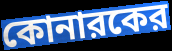
কোনারকের